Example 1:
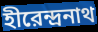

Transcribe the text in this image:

হীরেন্দ্রনাথ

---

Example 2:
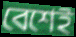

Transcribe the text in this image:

বেশেই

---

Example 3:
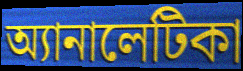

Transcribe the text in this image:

অ্যানালেটিকা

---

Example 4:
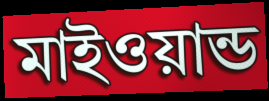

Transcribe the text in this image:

মাইওয়ান্ড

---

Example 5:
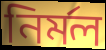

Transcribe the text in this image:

নির্মল